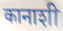
कानाशी